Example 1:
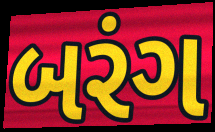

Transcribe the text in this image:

બરંગ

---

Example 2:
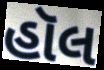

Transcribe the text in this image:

હૉલ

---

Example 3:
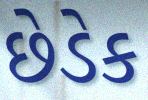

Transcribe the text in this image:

છેડેક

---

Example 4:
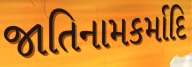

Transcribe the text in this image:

જાતિનામકર્માદિ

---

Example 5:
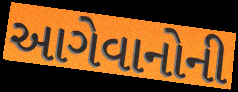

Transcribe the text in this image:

આગેવાનોની